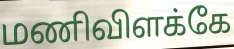
மணிவிளக்கே